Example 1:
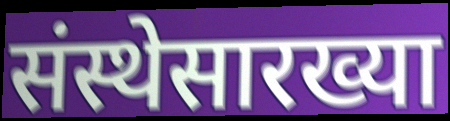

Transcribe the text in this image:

संस्थेसारख्या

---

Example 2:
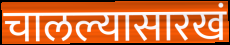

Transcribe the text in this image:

चालल्यासारखं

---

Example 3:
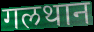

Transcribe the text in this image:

गलथान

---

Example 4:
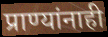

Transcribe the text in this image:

प्राण्यांनाही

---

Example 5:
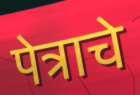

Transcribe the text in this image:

पेत्राचे